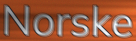
Norske